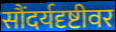
सौंदर्यदृष्टीवर